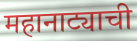
महानाट्याची